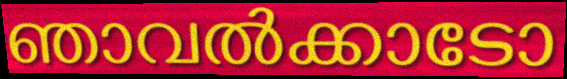
ഞാവൽക്കാടോ